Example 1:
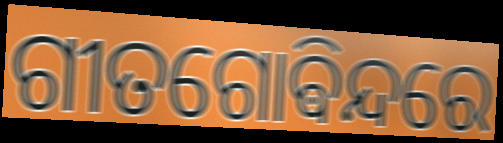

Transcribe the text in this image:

ଗୀତଗୋଵିନ୍ଦରେ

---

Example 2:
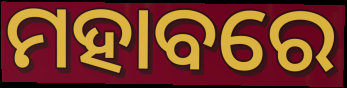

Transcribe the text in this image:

ମହାବରେ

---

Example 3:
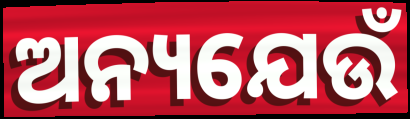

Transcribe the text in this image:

ଅନ୍ୟଯେଉଁ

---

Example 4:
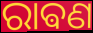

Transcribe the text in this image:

ରାଵଣ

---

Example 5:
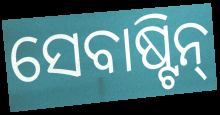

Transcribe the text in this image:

ସେବାଷ୍ଟିନ୍